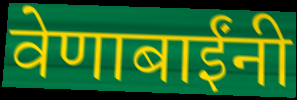
वेणाबाईंनी